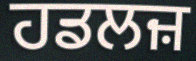
ਹਡਲਜ਼